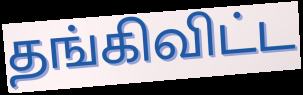
தங்கிவிட்ட